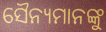
ସୈନ୍ୟମାନଙ୍କୁ